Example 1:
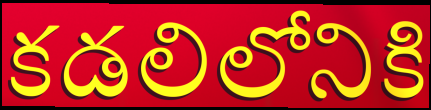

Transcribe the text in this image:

కడలిలోనికి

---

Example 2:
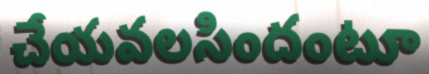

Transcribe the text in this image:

చేయవలసిందంటూ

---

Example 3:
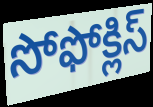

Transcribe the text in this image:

సోఫోక్లిస్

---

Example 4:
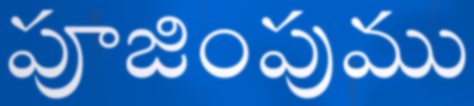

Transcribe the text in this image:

పూజింపుము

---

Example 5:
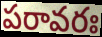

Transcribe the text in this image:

పరావరః